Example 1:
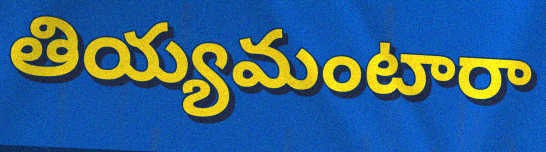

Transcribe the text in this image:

తియ్యమంటారా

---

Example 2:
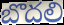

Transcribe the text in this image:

బొదలి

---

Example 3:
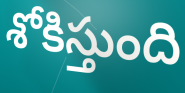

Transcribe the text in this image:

శోకిస్తుంది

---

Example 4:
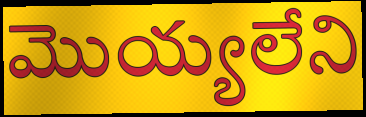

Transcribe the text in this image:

మొయ్యలేని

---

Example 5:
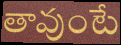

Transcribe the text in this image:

తావుంటే